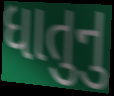
ધાતુનુ